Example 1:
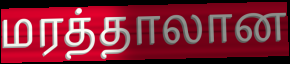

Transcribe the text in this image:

மரத்தாலான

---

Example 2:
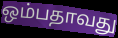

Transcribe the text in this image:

ஒம்பதாவது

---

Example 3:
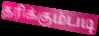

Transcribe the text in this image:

தரிக்கும்படி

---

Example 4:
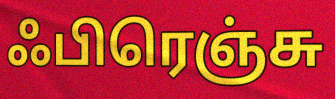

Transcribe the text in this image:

ஃபிரெஞ்சு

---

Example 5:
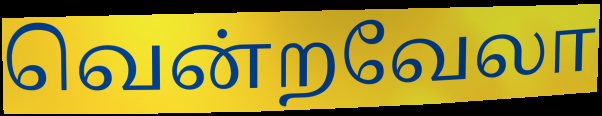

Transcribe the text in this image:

வென்றவேலா